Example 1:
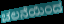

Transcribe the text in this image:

ಚಲನೆಯಿಂದ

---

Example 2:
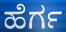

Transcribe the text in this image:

ಹೆರ್ಗ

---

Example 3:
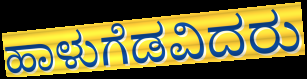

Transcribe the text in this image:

ಹಾಳುಗೆಡವಿದರು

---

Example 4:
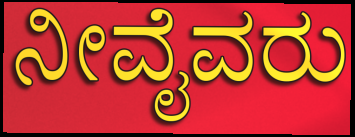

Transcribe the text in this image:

ನೀವೈವರು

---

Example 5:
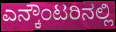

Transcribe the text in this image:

ಎನ್ಕೌಂಟರಿನಲ್ಲಿ